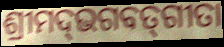
ଶ୍ରୀମଦ୍‌ଭଗବତ୍‌ଗୀତା